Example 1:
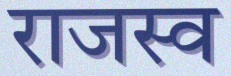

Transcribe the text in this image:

राजस्‍व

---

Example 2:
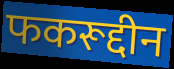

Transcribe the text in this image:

फकरूद्दीन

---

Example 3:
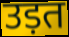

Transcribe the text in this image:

उड़त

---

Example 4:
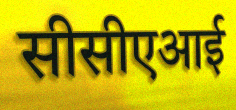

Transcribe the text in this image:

सीसीएआई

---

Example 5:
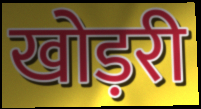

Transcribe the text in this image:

खोड़री